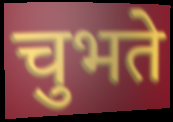
चुभते